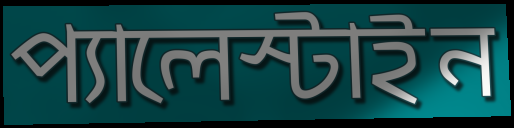
প্যালেস্টাইন